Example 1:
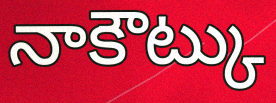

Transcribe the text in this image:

నాకౌట్కు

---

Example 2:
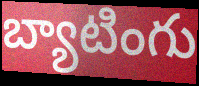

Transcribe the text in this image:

బ్యాటింగు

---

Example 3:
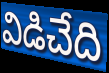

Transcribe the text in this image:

విడిచేది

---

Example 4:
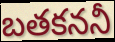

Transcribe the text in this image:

బతకననీ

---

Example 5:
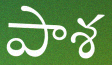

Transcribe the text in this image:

పాశ